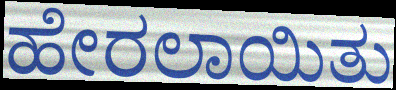
ಹೇರಲಾಯಿತು